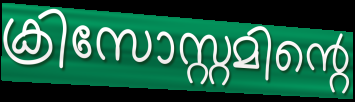
ക്രിസോസ്റ്റമിന്റെ